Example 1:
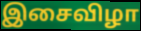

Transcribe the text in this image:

இசைவிழா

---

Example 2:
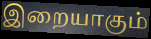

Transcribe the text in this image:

இறையாகும்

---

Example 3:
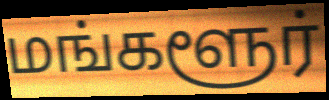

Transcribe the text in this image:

மங்களூர்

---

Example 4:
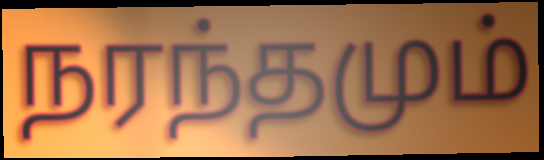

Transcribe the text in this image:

நரந்தமும்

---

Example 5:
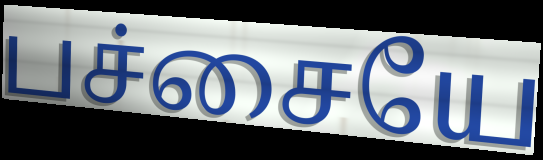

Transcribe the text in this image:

பச்சையே